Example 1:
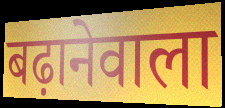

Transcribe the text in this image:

बढ़ानेवाला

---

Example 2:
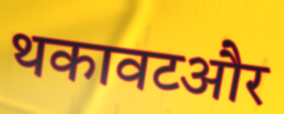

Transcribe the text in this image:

थकावटऔर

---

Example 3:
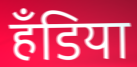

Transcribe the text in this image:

हँडिया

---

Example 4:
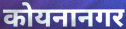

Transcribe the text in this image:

कोयनानगर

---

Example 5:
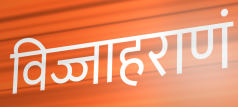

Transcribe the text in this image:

विज्जाहराणं